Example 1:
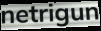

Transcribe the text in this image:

netrigun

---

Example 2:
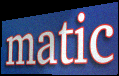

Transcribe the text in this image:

matic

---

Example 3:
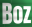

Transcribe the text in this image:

Boz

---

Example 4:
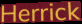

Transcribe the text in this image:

Herrick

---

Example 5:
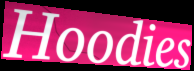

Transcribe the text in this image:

Hoodies